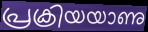
പ്രക്രിയയാണു